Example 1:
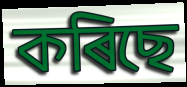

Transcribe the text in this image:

কৰিছে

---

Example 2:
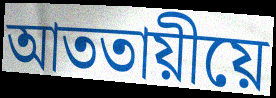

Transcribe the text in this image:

আততায়ীয়ে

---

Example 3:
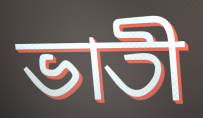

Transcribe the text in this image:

ভাতী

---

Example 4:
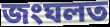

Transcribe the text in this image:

জংঘলত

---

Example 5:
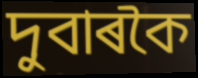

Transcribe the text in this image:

দুবাৰকৈ